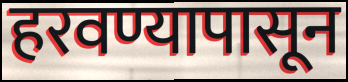
हरवण्यापासून